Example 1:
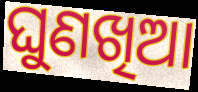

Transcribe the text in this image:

ଘୁଣଖିଆ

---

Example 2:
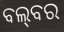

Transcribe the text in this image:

ବଲ୍‌ବର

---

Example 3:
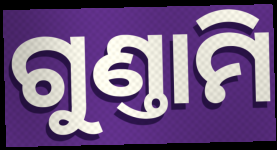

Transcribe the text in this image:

ଗୁଣ୍ତାମି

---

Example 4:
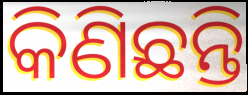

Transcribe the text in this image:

କିଣିଛନ୍ତି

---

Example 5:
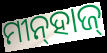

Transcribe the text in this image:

ମୀନ୍‌ହାଜ୍